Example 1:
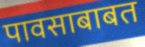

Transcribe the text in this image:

पावसाबाबत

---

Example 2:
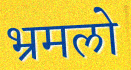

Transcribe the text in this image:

भ्रमलो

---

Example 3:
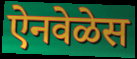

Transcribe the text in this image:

ऐनवेळेस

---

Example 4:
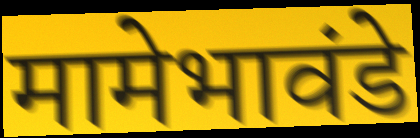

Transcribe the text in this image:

मामेभावंडे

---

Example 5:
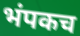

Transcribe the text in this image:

भंपकच